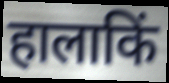
हालाकिं